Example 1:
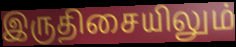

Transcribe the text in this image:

இருதிசையிலும்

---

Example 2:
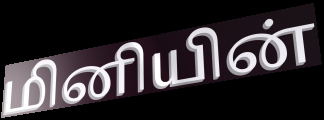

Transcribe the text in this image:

மினியின்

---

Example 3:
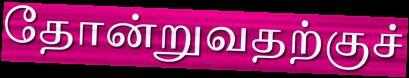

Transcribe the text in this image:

தோன்றுவதற்குச்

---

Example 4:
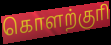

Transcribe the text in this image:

கொளற்குரி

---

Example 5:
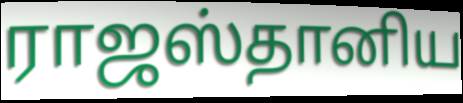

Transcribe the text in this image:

ராஜஸ்தானிய